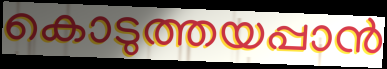
കൊടുത്തയപ്പാൻ